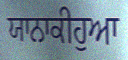
ਯਾਨਾਕੀਹੁਆ